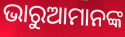
ଭାରୁଆମାନଙ୍କ